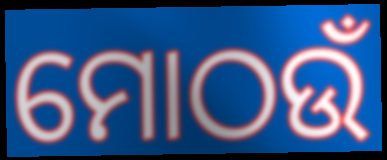
ମୋଠଉଁ